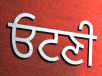
ਓਟਣੀ